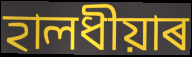
হালধীয়াৰ